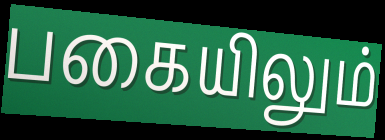
பகையிலும்